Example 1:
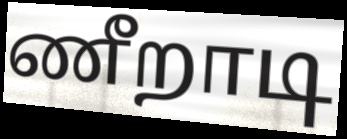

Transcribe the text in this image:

ணீறாடி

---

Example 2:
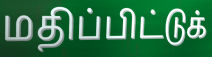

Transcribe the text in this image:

மதிப்பிட்டுக்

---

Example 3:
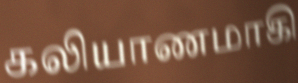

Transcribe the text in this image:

கலியாணமாகி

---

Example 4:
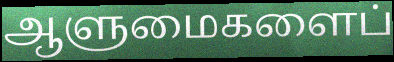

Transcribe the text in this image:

ஆளுமைகளைப்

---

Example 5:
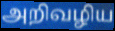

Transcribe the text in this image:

அறிவழிய